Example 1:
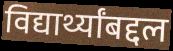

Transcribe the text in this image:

विद्यार्थ्यांबद्दल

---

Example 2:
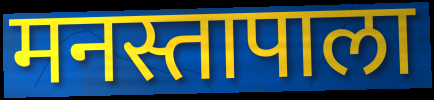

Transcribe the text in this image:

मनस्तापाला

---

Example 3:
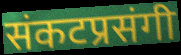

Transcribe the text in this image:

संकटप्रसंगी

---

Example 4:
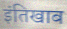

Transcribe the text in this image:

इंतिखाब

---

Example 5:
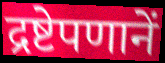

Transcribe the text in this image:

द्रष्टेपणानें